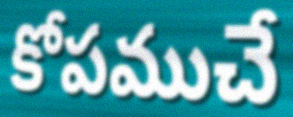
కోపముచే